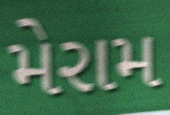
મેરામ